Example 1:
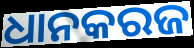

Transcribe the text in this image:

ଧାନକରଜ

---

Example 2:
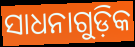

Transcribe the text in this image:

ସାଧନାଗୁଡ଼ିକ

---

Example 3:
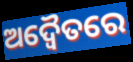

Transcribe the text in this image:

ଅଦ୍ୱୈତରେ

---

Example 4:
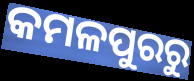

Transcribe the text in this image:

କମଳପୁରରୁ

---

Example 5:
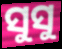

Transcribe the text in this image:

ସୁସୁ